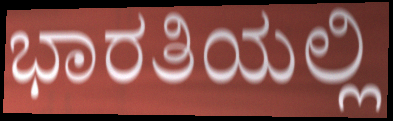
ಭಾರತಿಯಲ್ಲಿ